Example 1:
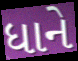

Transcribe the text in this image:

ધાને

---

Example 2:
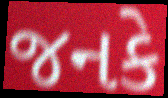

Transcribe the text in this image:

જનકે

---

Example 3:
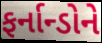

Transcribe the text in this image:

ફર્નાન્ડોને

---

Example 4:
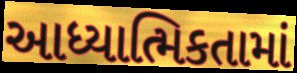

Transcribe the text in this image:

આધ્યાત્મિકતામાં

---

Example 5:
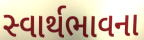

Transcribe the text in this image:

સ્વાર્થભાવના